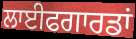
ਲਾਈਫਗਾਰਡਾਂ